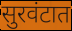
सुरवंटात